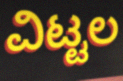
ವಿಟ್ಟಲ